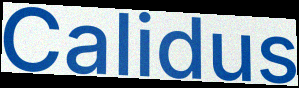
Calidus